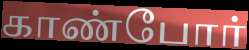
காண்போர்